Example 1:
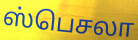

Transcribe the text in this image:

ஸ்பெசலா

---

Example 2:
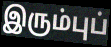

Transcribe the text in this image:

இரும்புப்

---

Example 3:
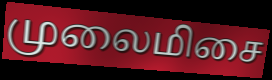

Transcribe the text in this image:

முலைமிசை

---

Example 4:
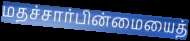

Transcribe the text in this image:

மதச்சார்பின்மையைத்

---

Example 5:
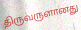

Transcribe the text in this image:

திருவருளானது